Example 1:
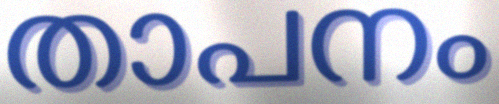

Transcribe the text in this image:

താപനം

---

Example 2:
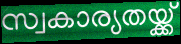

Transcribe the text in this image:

സ്വകാര്യതയ്ക്ക്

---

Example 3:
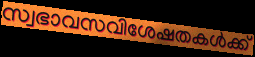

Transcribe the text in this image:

സ്വഭാവസവിശേഷതകൾക്ക്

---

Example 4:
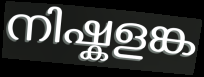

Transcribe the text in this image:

നിഷ്കളങ്ക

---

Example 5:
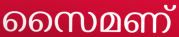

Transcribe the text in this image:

സൈമണ്